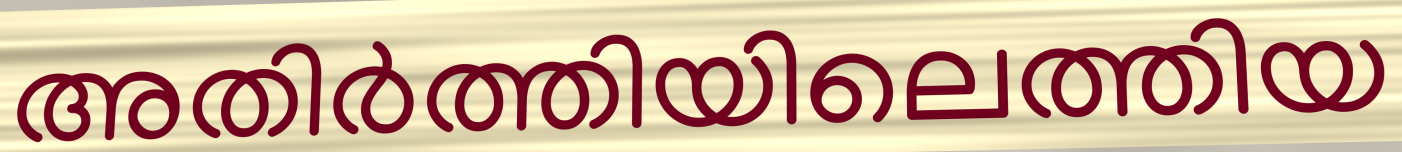
അതിർത്തിയിലെത്തിയ